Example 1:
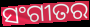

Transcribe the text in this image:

ସଂଗୀତର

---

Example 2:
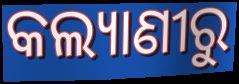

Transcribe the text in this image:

କଲ୍ୟାଣୀରୁ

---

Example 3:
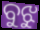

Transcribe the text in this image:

ବୁଝୁ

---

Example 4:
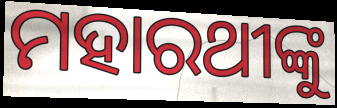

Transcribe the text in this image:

ମହାରଥୀଙ୍କୁ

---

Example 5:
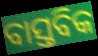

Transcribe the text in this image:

ବାସ୍ତବିକ